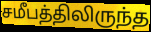
சமீபத்திலிருந்த